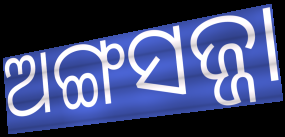
ଅଙ୍ଗସଜ୍ଜା